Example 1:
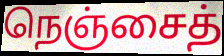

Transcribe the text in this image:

நெஞ்சைத்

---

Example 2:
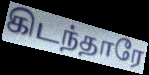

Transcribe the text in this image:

கிடந்தாரே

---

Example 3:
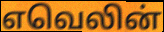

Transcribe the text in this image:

எவெலின்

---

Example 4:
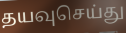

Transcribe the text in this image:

தயவுசெய்து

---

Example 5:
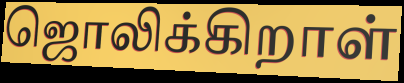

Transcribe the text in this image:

ஜொலிக்கிறாள்